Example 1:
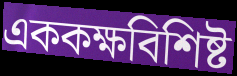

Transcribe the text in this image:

এককক্ষবিশিষ্ট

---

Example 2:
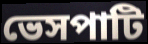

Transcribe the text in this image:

ভেসপাটি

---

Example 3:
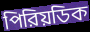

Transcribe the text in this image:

পিরিয়ডিক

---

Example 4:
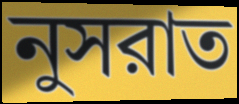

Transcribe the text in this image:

নুসরাত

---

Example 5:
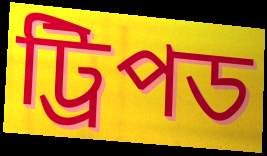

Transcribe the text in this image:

ট্রিপড